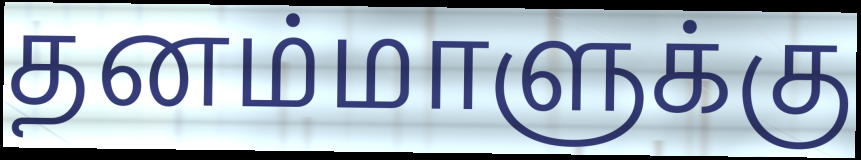
தனம்மாளுக்கு